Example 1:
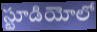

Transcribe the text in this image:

స్టూడియోలో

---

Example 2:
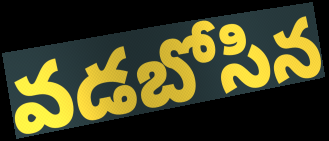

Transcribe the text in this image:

వడబోసిన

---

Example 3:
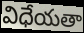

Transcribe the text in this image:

విధేయతా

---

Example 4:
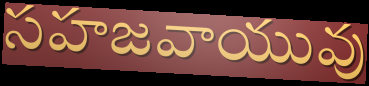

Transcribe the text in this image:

సహజవాయువు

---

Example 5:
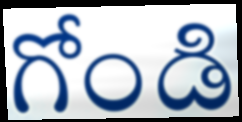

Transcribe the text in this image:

గోండి